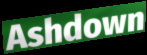
Ashdown